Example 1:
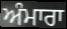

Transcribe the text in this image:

ਅੰਮਾਰਾ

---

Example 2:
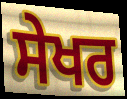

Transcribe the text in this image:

ਸੇਖਰ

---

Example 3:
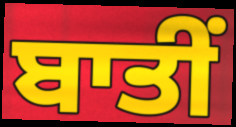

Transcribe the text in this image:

ਬਾਤੀਂ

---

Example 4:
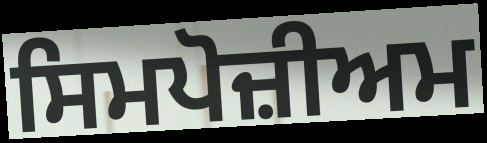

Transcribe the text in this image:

ਸਿਮਪੋਜ਼ੀਅਮ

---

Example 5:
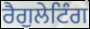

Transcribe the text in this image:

ਰੈਗੁਲੇਟਿੰਗ